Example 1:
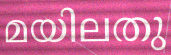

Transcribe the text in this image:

മയിലതു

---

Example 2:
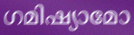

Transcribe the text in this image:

ഗമിഷ്യാമോ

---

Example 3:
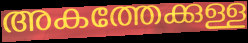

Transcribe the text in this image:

അകത്തേക്കുള്ള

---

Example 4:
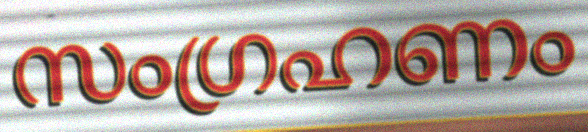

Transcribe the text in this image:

സംഗ്രഹണം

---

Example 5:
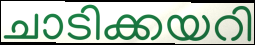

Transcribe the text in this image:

ചാടിക്കയറി